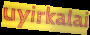
uyirkalai